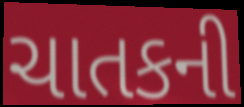
ચાતકની